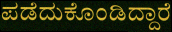
ಪಡೆದುಕೊಂಡಿದ್ದಾರೆ